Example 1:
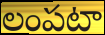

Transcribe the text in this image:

లంపటా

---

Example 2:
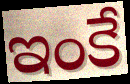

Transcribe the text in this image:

ఇంకే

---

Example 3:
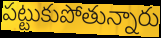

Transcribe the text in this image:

పట్టుకుపోతున్నారు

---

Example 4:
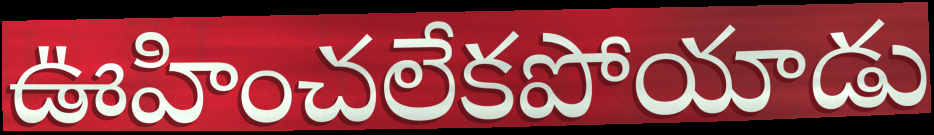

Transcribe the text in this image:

ఊహించలేకపోయాడు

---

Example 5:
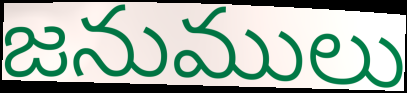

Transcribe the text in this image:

జనుములు